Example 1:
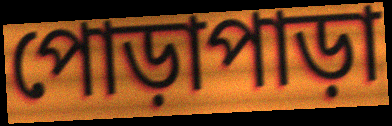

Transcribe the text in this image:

পোড়াপাড়া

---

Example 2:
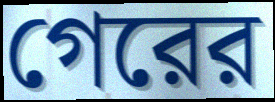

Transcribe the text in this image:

গেরের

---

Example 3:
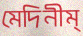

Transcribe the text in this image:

মেদিনীম্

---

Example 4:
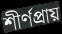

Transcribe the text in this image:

শীর্ণপ্রায়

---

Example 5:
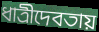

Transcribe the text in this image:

ধাত্রীদেবতায়